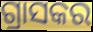
ଗ୍ରାସକର